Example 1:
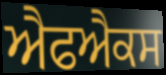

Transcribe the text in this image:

ਐਫਐਕਸ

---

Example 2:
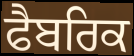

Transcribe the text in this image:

ਫੈਬਰਿਕ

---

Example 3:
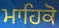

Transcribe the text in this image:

ਮਾਹਿਕੋ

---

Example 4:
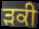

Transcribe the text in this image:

ੜਕੀ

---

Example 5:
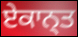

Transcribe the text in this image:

ਏਕਾਨ੍ਤ